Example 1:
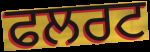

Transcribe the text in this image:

ਫਲਰਟ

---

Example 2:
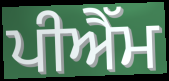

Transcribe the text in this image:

ਪੀਐੱਮ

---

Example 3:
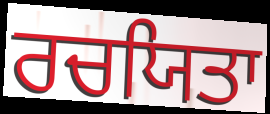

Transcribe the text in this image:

ਰਚਯਿਤਾ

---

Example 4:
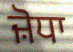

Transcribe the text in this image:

ਜ਼ੋਧਾ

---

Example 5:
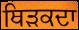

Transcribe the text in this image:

ਥਿੜਕਦਾ